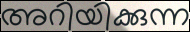
അറിയിക്കുന്ന